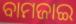
ବାମଜାଇ